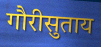
गौरीसुताय